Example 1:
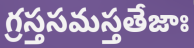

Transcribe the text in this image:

గ్రస్తసమస్తతేజాః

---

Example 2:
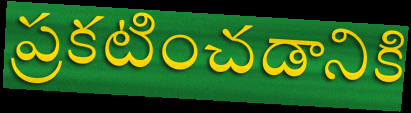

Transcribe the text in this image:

ప్రకటించడానికి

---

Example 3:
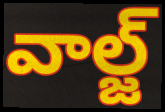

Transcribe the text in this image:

వాల్జ్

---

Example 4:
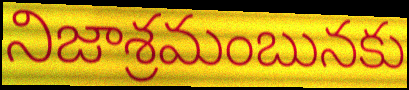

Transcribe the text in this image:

నిజాశ్రమంబునకు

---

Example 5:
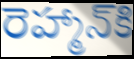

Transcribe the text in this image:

రెహ్మాన్‌కి